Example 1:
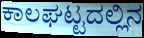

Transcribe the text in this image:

ಕಾಲಘಟ್ಟದಲ್ಲಿನ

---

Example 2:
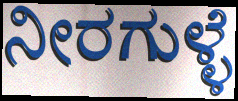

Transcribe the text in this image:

ನೀರಗುಳ್ಳೆ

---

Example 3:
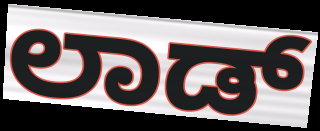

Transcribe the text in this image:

ಲಾಡ್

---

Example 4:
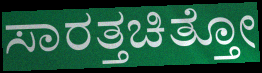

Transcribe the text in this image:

ಸಾರತ್ತಚಿತ್ತೋ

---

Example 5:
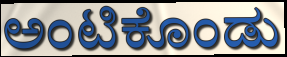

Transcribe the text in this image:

ಅಂಟಿಕೊಂಡು